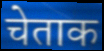
चेताक